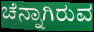
ಚೆನ್ನಾಗಿರುವ